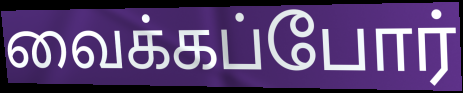
வைக்கப்போர்